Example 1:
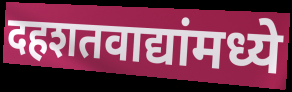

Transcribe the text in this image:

दहशतवाद्यांमध्ये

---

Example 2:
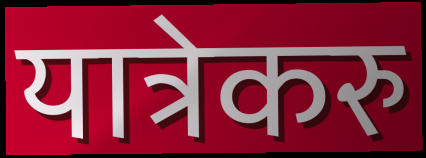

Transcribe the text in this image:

यात्रेकरु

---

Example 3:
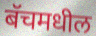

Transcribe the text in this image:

बॅचमधील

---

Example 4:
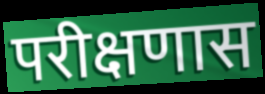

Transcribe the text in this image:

परीक्षणास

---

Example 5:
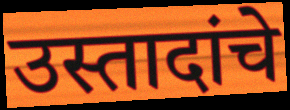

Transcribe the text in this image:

उस्तादांचे